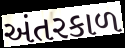
અંતરકાળ